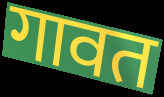
गावत